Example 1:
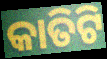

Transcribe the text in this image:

କାତିଟି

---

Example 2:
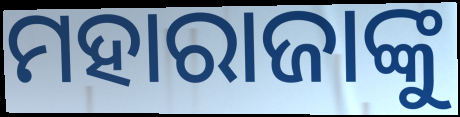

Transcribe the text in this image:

ମହାରାଜାଙ୍କୁ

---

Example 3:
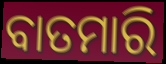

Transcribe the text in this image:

ବାତମାରି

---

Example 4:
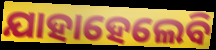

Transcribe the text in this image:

ଯାହାହେଲେବି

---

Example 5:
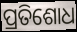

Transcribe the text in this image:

ପ୍ରତିଶୋଧ